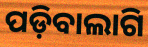
ପଡ଼ିବାଲାଗି